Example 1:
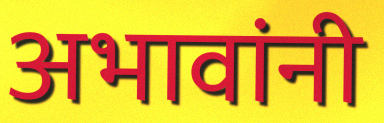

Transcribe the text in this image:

अभावांनी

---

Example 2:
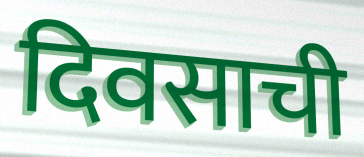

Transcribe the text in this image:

दिवसाची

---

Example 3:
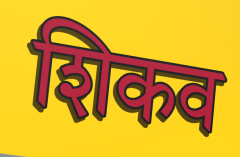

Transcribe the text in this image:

शिकव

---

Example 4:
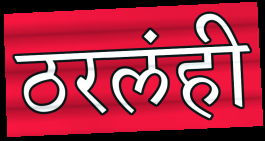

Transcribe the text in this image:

ठरलंही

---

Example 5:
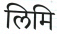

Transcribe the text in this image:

लिमि